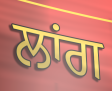
ਲਾਂਗ